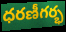
ధరణీగర్భ